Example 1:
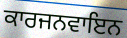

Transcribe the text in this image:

ਕਾਰਜਨਵਾਇਨ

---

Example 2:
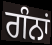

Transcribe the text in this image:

ਗੰਨਾਂ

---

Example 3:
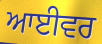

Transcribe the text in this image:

ਆਈਵਰ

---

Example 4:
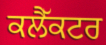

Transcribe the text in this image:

ਕਲੈੱਕਟਰ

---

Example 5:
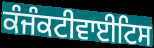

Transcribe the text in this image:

ਕੰਜੰਕਟੀਵਾਈਟਿਸ